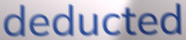
deducted